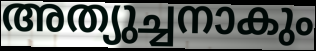
അത്യുച്ചനാകും